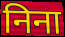
निना